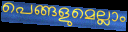
പെങ്ങളുമെല്ലാം